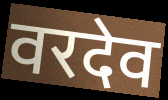
वरदेव